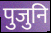
पुजुनि